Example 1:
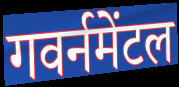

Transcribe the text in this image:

गवर्नमेंटल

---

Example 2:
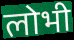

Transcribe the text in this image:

लोभी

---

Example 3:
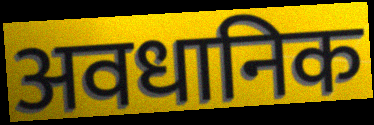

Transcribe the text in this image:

अवधानिक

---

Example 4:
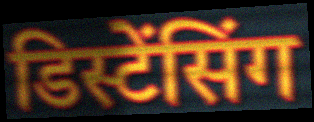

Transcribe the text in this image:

डिस्टेंसिंग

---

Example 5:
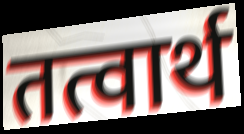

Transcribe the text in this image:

तत्वार्थ